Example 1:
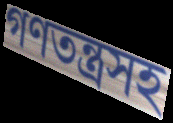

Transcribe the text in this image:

গণতন্ত্রসহ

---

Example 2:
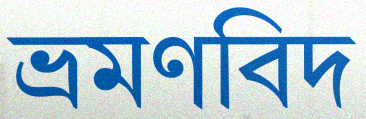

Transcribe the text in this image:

ভ্রমণবিদ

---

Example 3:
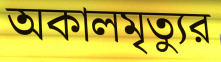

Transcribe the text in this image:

অকালমৃত্যুর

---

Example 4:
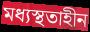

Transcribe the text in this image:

মধ্যস্থতাহীন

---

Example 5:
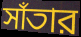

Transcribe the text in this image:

সাঁতার